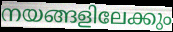
നയങ്ങളിലേക്കും